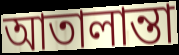
আতালান্তা